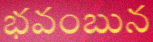
భవంబున